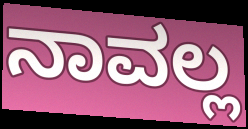
ನಾವಲ್ಲ